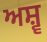
ਅਸ਼੍ਵ